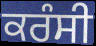
ਕਰੰਸੀ